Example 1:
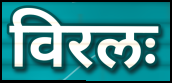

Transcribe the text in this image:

विरलः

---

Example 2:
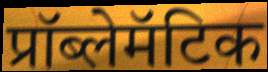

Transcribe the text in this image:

प्रॉब्लेमॅटिक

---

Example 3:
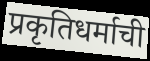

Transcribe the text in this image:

प्रकृतिधर्माची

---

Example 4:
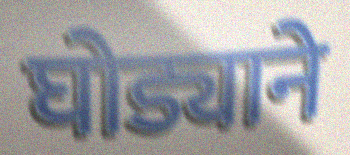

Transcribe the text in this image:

घोड्याने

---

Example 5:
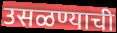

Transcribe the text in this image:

उसळण्याची